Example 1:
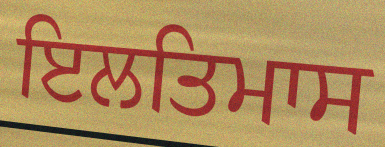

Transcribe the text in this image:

ਇਲਤਿਮਾਸ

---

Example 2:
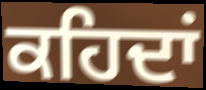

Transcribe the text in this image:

ਕਹਿਦਾਂ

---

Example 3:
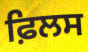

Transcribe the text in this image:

ਫ਼ਿਲਸ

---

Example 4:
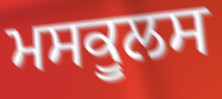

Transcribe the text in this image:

ਮਸਕੂਲਸ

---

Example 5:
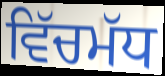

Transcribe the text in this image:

ਵਿੱਚਮੱਧ